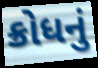
ક્રોધનું